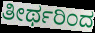
ತೀರ್ಥರಿಂದ